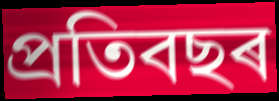
প্ৰতিবছৰ